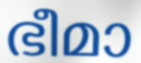
ഭീമാ